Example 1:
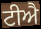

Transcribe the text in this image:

ਟੀਐ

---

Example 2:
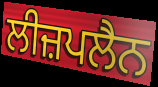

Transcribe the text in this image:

ਲੀਜ਼ਪਲੈਨ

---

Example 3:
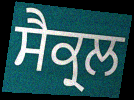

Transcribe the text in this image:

ਸੈਕ੍ਰਲ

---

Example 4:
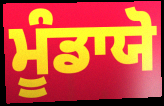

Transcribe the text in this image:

ਮੂੰਡਾਯੋ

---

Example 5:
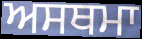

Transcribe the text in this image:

ਅਸਥਮਾ